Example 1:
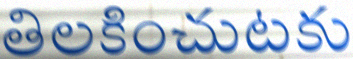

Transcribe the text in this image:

తిలకించుటకు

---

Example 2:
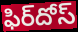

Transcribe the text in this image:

ఫిర్‌దోస్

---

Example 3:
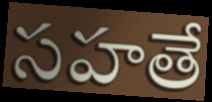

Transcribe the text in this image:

సహతే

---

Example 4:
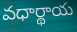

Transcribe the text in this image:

వధార్థాయ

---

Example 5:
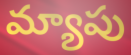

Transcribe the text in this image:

మ్యాపు